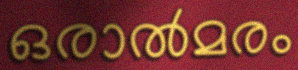
ഒരാൽമരം